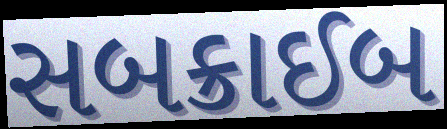
સબક્રાઈબ